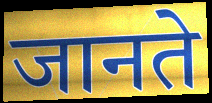
जानते